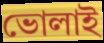
ভোলাই